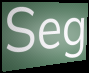
Seg